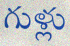
గుళ్లు